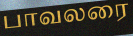
பாவலரை